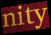
nity